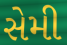
સેમી